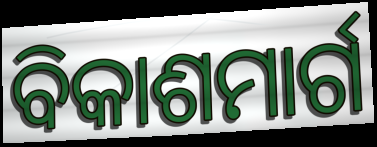
ବିକାଶମାର୍ଗ